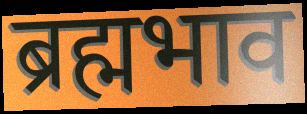
ब्रह्मभाव